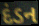
દંડન